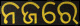
ନଜରେ